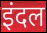
इंदल